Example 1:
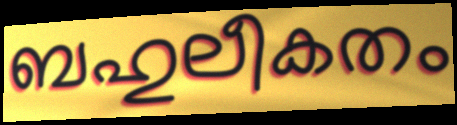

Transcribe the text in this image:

ബഹുലീകതം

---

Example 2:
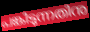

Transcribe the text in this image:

പങ്കിടുന്നതിനു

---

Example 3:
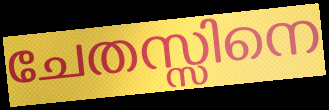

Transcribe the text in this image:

ചേതസ്സിനെ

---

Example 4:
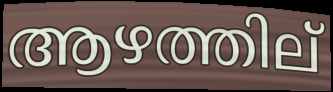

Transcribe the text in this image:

ആഴത്തില്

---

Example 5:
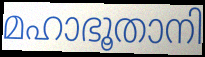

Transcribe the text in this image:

മഹാഭൂതാനി